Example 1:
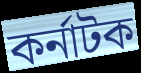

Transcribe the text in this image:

কর্নাটক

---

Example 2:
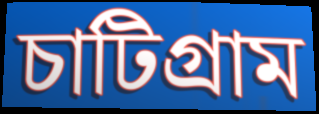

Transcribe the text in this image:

চাটিগ্রাম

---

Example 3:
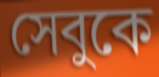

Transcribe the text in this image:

সেবুকে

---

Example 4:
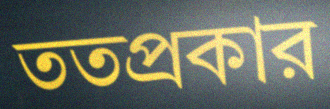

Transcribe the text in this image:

ততপ্রকার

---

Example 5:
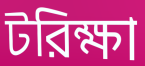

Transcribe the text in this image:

টরিক্ষা